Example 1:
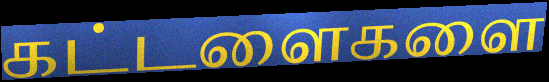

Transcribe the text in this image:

கட்டளைகளை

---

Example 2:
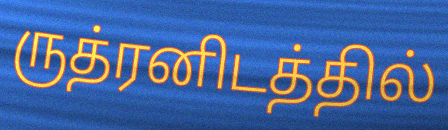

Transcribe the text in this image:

ருத்ரனிடத்தில்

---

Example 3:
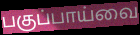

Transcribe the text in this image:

பகுப்பாய்வை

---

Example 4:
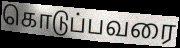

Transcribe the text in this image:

கொடுப்பவரை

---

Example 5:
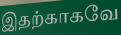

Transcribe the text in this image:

இதற்காகவே